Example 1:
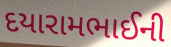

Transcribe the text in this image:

દયારામભાઈની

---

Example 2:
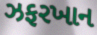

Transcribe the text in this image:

ઝફરખાન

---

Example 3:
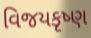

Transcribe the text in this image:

વિજયકૃષ્ણ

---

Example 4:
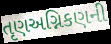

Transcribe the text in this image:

તૃણઅગ્નિકણની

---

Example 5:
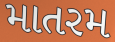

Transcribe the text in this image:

માતરમ